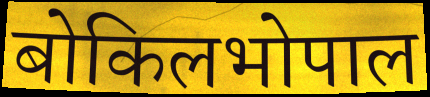
बोकिलभोपाल